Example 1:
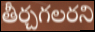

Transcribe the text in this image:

తీర్చగలరని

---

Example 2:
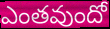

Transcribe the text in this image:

ఎంతవుందో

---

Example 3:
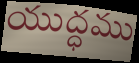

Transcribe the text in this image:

యుద్ధము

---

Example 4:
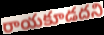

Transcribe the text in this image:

రాయకూడదని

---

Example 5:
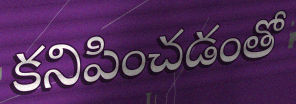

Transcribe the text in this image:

కనిపించడంతో